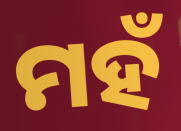
ମହଁ